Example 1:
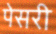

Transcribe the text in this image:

पेसरी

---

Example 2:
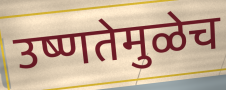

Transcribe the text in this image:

उष्णतेमुळेच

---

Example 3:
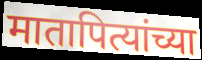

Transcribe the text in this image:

मातापित्यांच्या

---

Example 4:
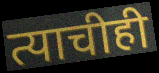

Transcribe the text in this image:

त्याचीही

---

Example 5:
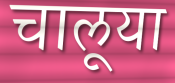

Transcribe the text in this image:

चालूया